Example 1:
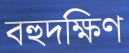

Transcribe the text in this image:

বহুদক্ষিণ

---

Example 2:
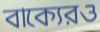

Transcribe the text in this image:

বাক্যেরও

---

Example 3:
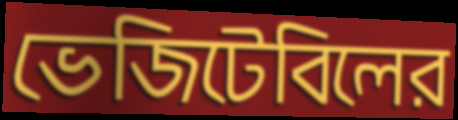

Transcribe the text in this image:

ভেজিটেবিলের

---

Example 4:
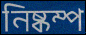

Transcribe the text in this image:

নিষ্কম্প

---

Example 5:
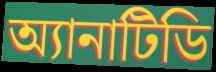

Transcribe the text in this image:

অ্যানাটিডি